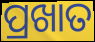
ପ୍ରଖାତ